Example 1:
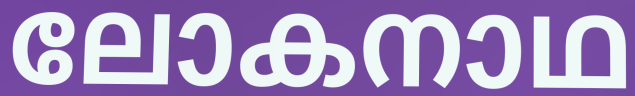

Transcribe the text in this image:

ലോകനാഥ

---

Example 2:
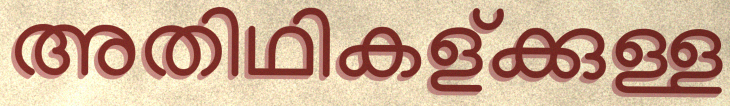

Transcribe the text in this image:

അതിഥികള്ക്കുള്ള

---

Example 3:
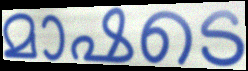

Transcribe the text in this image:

മാഷടെ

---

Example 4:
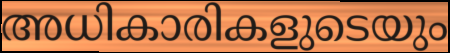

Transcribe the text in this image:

അധികാരികളുടെയും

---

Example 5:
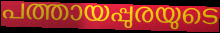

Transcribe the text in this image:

പത്തായപ്പുരയുടെ